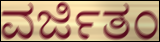
ವರ್ಜಿತಂ